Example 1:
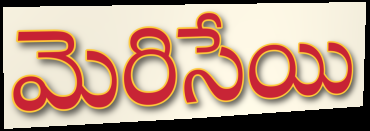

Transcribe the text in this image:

మెరిసేయి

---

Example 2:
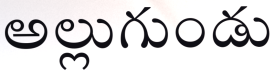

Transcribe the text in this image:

అల్లుగుండు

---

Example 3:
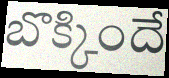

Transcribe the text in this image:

బొక్కిందే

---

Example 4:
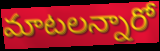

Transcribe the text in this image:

మాటలన్నారో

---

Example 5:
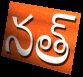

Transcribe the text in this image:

నత్